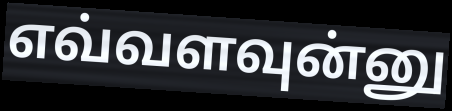
எவ்வளவுன்னு